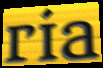
ria